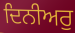
ਦਿਨੀਅਰੁ